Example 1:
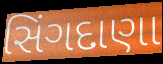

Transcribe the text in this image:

સિંગદાણા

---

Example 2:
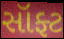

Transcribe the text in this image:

સૉફ્ટ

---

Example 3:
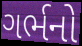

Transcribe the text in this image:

ગર્ભનો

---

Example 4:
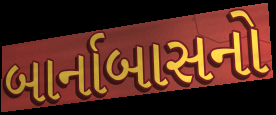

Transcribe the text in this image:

બાર્નાબાસનો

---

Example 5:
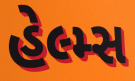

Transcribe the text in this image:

હેલ્મ્સ